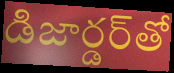
డిజార్డర్‌తో